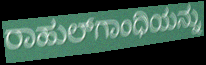
ರಾಹುಲ್‌ಗಾಂಧಿಯನ್ನು